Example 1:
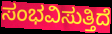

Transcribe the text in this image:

ಸಂಭವಿಸುತ್ತಿದೆ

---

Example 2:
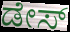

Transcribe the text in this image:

ಡೇಸ್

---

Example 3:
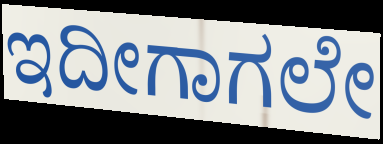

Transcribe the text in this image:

ಇದೀಗಾಗಲೇ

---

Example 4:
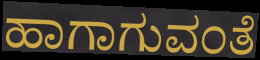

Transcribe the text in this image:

ಹಾಗಾಗುವಂತೆ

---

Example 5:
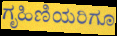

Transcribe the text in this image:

ಗೃಹಿಣಿಯರಿಗೂ